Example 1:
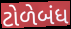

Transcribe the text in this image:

ટોળેબંધ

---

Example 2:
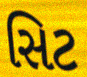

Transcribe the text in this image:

સિટ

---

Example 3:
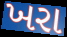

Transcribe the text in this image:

ખરા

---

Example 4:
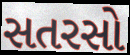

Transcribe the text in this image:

સતરસો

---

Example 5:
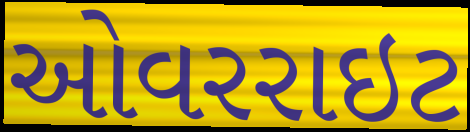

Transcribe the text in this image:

ઓવરરાઇટ